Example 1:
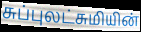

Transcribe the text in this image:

சுப்புலட்சுமியின்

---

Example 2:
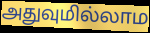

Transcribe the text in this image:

அதுவுமில்லாம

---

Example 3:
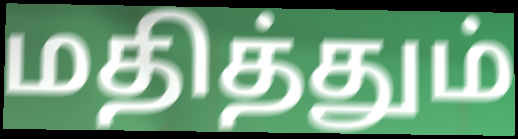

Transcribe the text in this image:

மதித்தும்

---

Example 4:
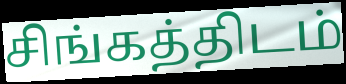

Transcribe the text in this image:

சிங்கத்திடம்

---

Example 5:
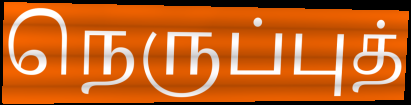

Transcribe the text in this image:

நெருப்புத்